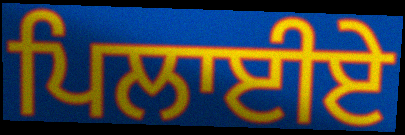
ਪਿਲਾਈਏ